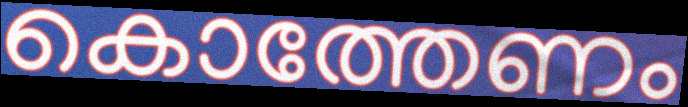
കൊത്തേണം